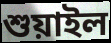
শুয়াইল